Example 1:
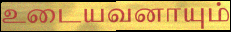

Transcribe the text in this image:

உடையவனாயும்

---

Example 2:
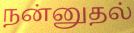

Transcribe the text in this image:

நன்னுதல்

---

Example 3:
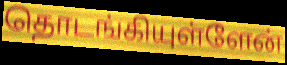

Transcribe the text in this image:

தொடங்கியுள்ளேன்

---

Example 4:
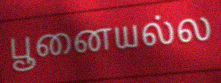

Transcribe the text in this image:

பூனையல்ல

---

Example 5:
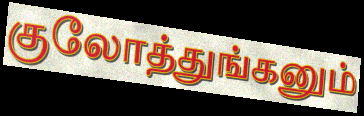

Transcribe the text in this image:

குலோத்துங்கனும்